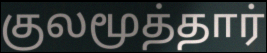
குலமூத்தார்